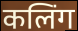
कलिंग